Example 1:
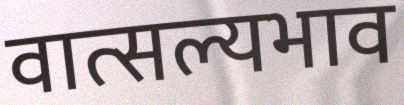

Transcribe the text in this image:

वात्सल्यभाव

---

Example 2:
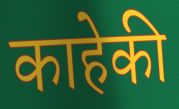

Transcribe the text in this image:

काहेकी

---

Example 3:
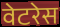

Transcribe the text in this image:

वेटरेस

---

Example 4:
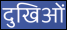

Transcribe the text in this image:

दुखिओं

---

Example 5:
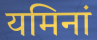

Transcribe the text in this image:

यमिनां